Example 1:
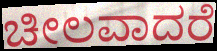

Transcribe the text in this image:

ಚೀಲವಾದರೆ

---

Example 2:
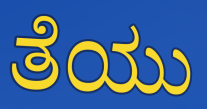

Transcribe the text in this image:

ತೆಯು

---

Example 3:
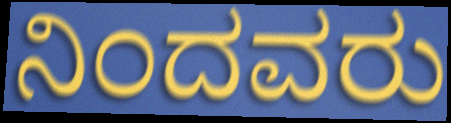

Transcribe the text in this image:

ನಿಂದವರು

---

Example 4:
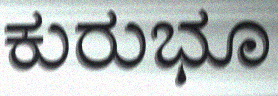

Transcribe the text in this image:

ಕುರುಭೂ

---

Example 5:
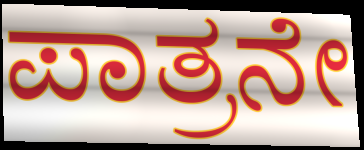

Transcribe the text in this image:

ಪಾತ್ರನೇ